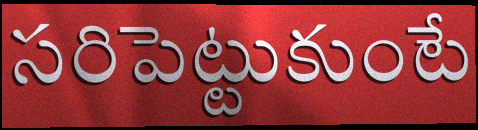
సరిపెట్టుకుంటే